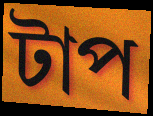
টাপ